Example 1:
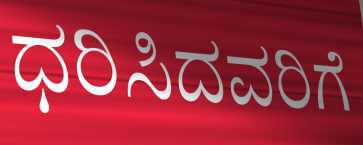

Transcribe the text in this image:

ಧರಿಸಿದವರಿಗೆ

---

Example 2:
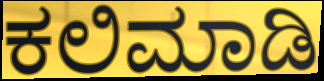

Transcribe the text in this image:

ಕಲಿಮಾಡಿ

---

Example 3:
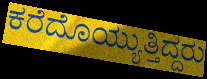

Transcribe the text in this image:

ಕರೆದೊಯ್ಯುತ್ತಿದ್ದರು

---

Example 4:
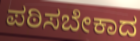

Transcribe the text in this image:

ಪಠಿಸಬೇಕಾದ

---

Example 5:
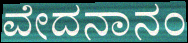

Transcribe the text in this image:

ವೇದನಾನಂ